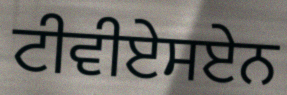
ਟੀਵੀਏਸਏਨ